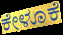
ಕೇಳೂಕೆ